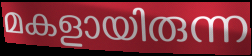
മകളായിരുന്ന